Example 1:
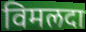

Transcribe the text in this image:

विमलदा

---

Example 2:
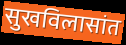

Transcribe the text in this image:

सुखविलासांत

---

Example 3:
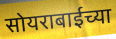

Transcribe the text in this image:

सोयराबाईच्या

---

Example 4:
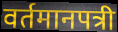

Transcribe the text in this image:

वर्तमानपत्री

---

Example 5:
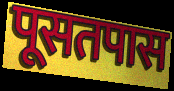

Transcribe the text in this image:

पूसतपास